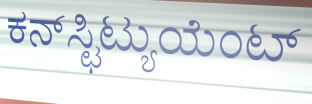
ಕನ್‌ಸ್ಟಿಟ್ಯುಯೆಂಟ್